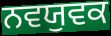
ਨਵਯੁਵਕ